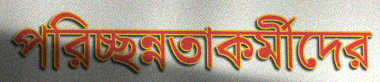
পরিচ্ছন্নতাকর্মীদের